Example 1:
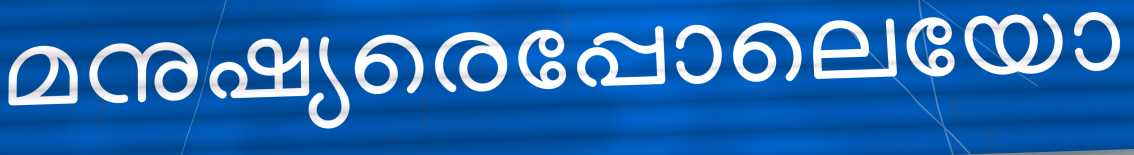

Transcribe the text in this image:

മനുഷ്യരെപ്പോലെയോ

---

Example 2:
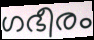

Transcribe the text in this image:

ഗഭീരം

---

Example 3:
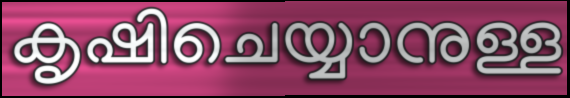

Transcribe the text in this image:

കൃഷിചെയ്യാനുള്ള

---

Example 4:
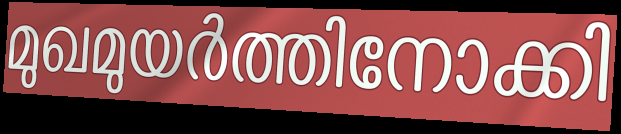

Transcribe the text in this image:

മുഖമുയർത്തിനോക്കി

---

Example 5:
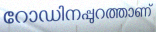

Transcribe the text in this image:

റോഡിനപ്പുറത്താണ്